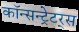
कॉन्सन्ट्रेटर्स